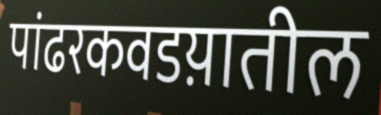
पांढरकवडय़ातील